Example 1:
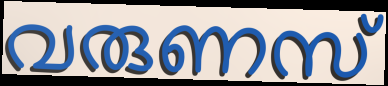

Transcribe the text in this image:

വരുണസ്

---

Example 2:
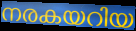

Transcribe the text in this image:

നരകയറിയ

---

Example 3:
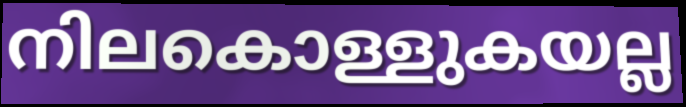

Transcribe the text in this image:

നിലകൊള്ളുകയല്ല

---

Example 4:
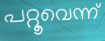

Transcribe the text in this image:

പറ്റൂവെന്ന്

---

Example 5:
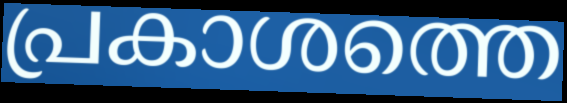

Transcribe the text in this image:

പ്രകാശത്തെ